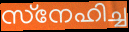
സ്‌നേഹിച്ച